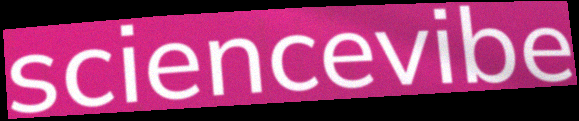
sciencevibe